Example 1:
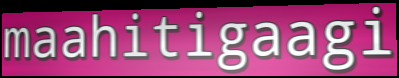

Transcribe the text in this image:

maahitigaagi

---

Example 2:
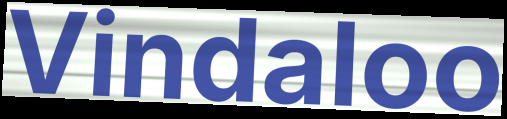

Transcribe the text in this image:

Vindaloo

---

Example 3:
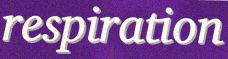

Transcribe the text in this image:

respiration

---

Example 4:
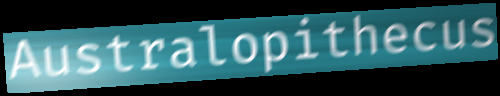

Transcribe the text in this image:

Australopithecus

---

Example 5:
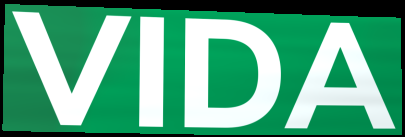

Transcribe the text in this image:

VIDA